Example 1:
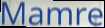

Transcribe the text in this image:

Mamre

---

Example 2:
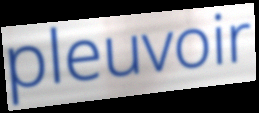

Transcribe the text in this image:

pleuvoir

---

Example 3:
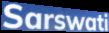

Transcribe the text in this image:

Sarswati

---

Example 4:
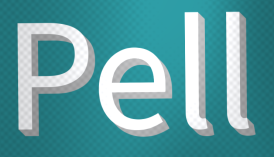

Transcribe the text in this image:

Pell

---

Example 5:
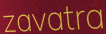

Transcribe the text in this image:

zavatra